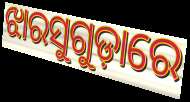
ଝାରସୁଗୁଡ଼ାରେ